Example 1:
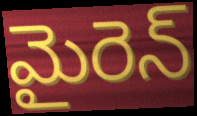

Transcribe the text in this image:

మైరెన్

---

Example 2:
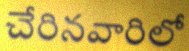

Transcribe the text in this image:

చేరినవారిలో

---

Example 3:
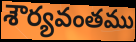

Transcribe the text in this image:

శౌర్యవంతము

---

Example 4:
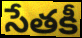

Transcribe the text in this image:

సేతకీ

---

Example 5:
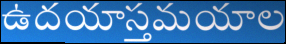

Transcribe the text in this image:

ఉదయాస్తమయాల